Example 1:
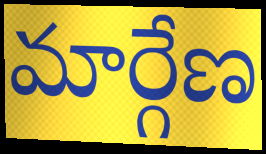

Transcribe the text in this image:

మార్గేణ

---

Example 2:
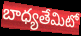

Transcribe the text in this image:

బాధ్యతేమిటో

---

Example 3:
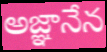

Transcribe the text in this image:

అజ్ఞానేన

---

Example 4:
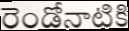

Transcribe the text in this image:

రెండోనాటికి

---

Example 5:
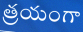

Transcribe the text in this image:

త్రయంగా